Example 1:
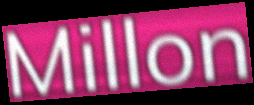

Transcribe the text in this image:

Millon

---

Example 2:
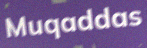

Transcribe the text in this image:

Muqaddas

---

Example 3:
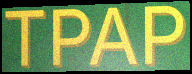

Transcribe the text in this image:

TPAP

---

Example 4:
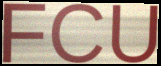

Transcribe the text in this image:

FCU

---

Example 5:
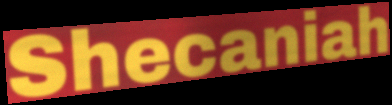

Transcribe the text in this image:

Shecaniah